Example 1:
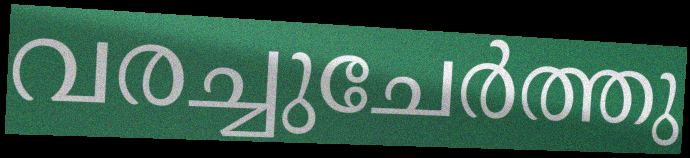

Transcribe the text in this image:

വരച്ചുചേർത്തു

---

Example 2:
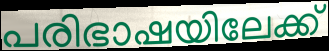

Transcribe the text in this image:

പരിഭാഷയിലേക്ക്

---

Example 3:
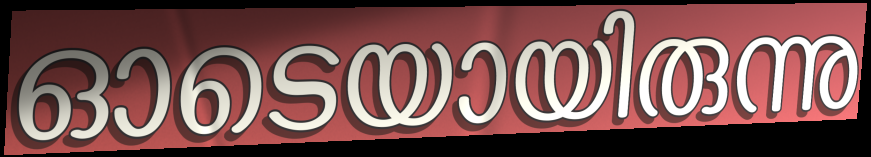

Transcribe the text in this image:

ഓടെയായിരുന്നു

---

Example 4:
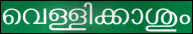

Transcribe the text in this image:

വെള്ളിക്കാശും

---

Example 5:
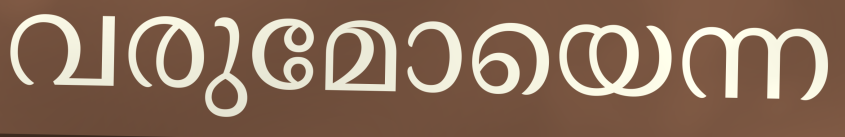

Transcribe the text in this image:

വരുമോയെന്ന